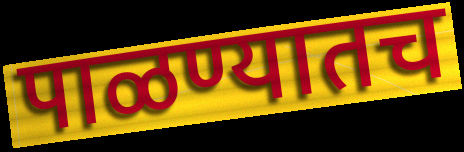
पाळण्यातच